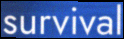
survival